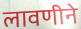
लावणीने